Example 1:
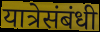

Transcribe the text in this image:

यात्रेसंबंधी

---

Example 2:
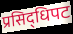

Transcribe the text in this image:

प्रसिद्धिपट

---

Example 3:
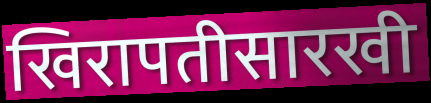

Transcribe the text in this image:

खिरापतीसारखी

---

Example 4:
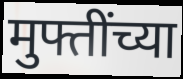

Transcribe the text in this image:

मुफ्तींच्या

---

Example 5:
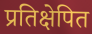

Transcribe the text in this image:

प्रतिक्षेपित